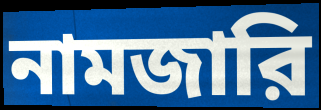
নামজারি